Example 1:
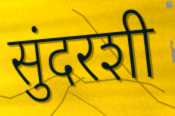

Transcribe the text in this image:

सुंदरशी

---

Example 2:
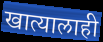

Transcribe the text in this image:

खात्यालाही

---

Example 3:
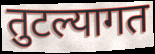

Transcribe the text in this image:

तुटल्यागत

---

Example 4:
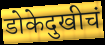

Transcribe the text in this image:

डोकेदुखीचं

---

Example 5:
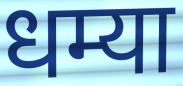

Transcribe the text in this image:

धम्या